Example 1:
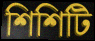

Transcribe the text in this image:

শিশিটি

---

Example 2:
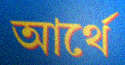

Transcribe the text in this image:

আর্থে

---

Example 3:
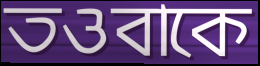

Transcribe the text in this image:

তওবাকে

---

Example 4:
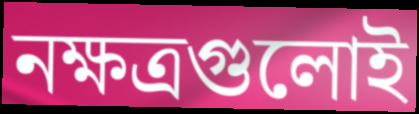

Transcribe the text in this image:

নক্ষত্রগুলোই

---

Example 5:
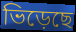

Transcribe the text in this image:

ভিড়েছে